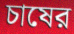
চাষের